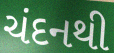
ચંદનથી